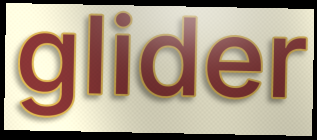
glider